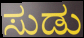
ಸುಡು